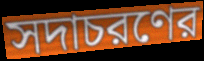
সদাচরণের